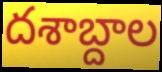
దశాబ్దాల